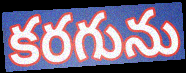
కరగును